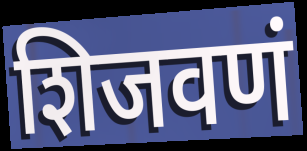
शिजवणं